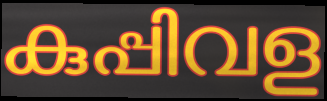
കുപ്പിവള